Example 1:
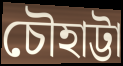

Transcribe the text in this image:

চৌহাট্টা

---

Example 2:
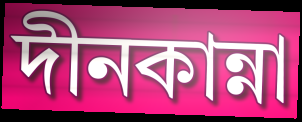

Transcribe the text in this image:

দীনকান্না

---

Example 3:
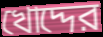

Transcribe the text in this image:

খোদ্দের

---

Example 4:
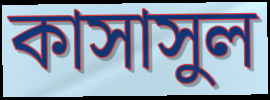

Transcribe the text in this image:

কাসাসুল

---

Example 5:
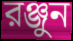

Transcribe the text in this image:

রঞ্জুন